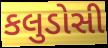
કલુડોસી